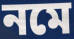
নমে